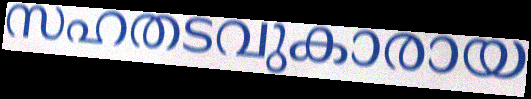
സഹതടവുകാരായ